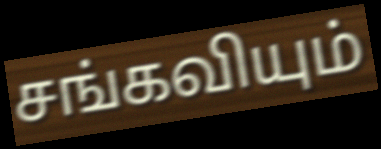
சங்கவியும்